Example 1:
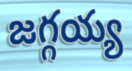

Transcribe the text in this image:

జగ్గయ్య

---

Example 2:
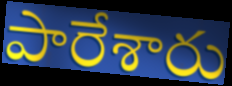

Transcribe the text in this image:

పారేశారు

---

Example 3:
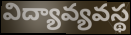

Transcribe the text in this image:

విద్యావ్యవస్థ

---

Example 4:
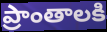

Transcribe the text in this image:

ప్రాంతాలకి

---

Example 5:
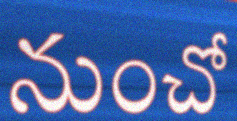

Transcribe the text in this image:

నుంచో